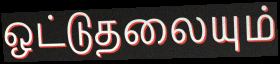
ஒட்டுதலையும்